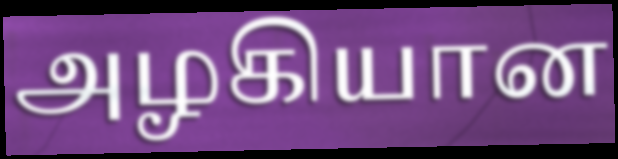
அழகியான